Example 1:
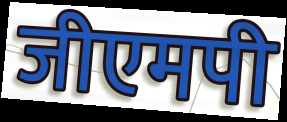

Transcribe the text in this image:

जीएमपी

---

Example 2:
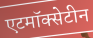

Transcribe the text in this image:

एटमॉक्सेटीन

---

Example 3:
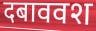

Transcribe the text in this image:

दबाववश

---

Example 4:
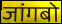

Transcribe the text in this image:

जांगबो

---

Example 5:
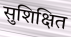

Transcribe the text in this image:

सुशिक्षित